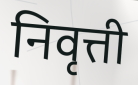
निवृत्ती